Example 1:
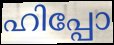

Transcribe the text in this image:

ഹിപ്പോ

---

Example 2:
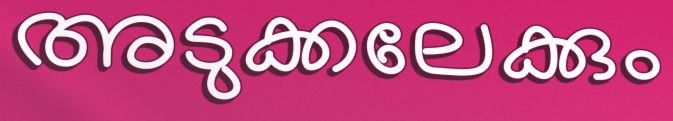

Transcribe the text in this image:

അടുക്കലേക്കും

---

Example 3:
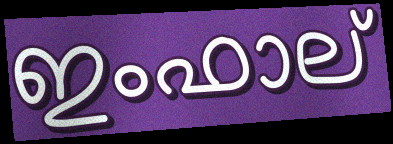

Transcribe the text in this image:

ഇംഫാല്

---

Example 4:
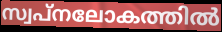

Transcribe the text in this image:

സ്വപ്നലോകത്തിൽ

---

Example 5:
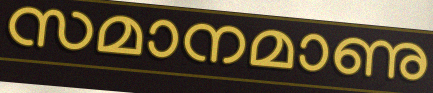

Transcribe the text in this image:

സമാനമാണു